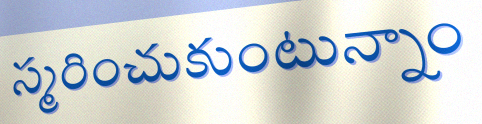
స్మరించుకుంటున్నాం